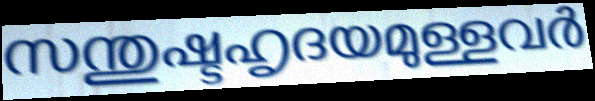
സന്തുഷ്ടഹൃദയമുള്ളവർ